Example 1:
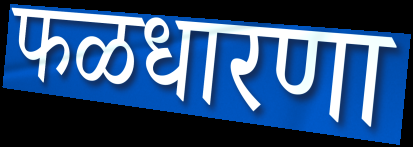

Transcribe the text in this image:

फळधारणा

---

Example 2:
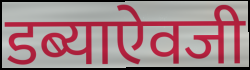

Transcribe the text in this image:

डब्याऐवजी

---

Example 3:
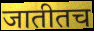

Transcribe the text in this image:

जातीतच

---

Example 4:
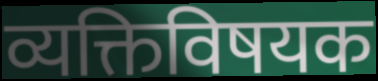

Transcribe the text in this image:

व्यक्तिविषयक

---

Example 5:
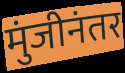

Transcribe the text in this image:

मुंजीनंतर